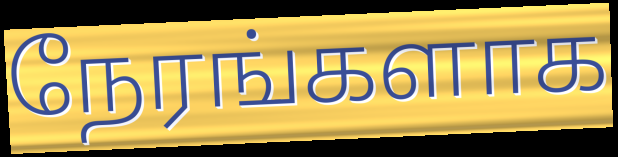
நேரங்களாக